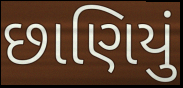
છાણિયું